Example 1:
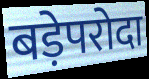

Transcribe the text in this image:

बड़ेपरोदा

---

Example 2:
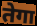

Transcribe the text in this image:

तेगा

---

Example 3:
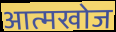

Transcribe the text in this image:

आत्मखोज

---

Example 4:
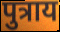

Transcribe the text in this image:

पुत्राय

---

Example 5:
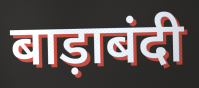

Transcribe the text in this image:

बाड़ाबंदी